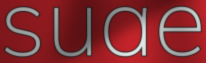
suae